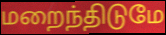
மறைந்திடுமே